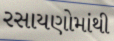
રસાયણોમાંથી